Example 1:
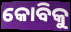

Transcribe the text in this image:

କୋବିକୁ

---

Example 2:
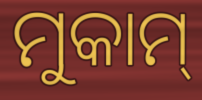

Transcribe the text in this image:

ମୁକାମ୍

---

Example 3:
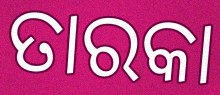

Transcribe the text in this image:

ତାରକା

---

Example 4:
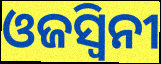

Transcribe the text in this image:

ଓଜସ୍ଵିନୀ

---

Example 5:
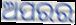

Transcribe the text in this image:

ଅପରର